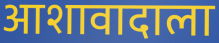
आशावादाला